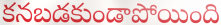
కనబడకుండాపోయింది